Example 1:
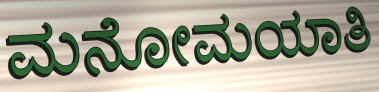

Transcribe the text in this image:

ಮನೋಮಯಾತಿ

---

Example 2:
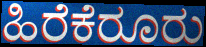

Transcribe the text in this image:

ಹಿರೆಕೆರೂರು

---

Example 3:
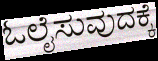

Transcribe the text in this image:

ಓಲೈಸುವುದಕ್ಕೆ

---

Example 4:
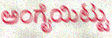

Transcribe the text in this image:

ಅಂಗೈಯಿಟ್ಟು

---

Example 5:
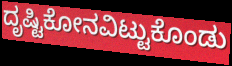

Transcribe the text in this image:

ದೃಷ್ಟಿಕೋನವಿಟ್ಟುಕೊಂಡು